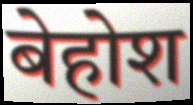
बेहोश